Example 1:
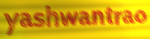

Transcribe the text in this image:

yashwantrao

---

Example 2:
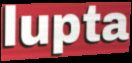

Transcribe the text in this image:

lupta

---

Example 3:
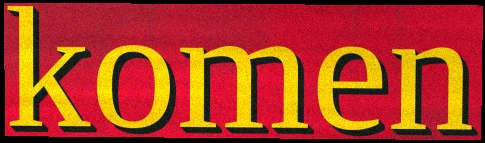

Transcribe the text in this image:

komen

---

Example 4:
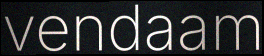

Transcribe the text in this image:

vendaam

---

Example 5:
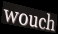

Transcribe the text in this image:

wouch